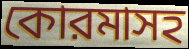
কোরমাসহ